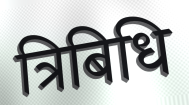
त्रिबिधि